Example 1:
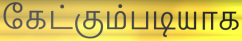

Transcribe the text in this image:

கேட்கும்படியாக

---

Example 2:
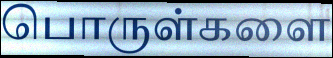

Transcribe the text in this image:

பொருள்களை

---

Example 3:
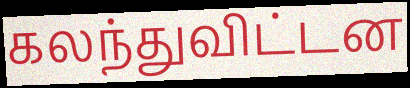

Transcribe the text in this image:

கலந்துவிட்டன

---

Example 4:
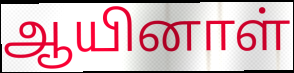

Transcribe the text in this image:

ஆயினாள்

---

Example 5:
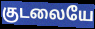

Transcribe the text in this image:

குடலையே